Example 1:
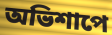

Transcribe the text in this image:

অভিশাপে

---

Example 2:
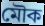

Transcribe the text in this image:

মৌক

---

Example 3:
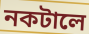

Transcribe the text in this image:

নকটালে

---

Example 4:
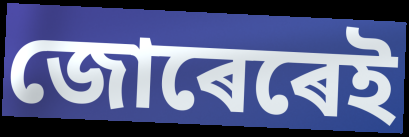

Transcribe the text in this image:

জোৰেৰেই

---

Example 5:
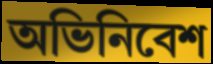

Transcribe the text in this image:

অভিনিবেশ